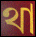
থা